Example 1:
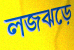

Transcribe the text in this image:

লজঝড়ে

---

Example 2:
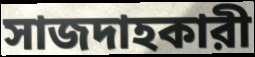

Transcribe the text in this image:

সাজদাহকারী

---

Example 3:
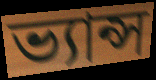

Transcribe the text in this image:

ভ্যান্স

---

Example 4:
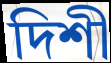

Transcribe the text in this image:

দিশী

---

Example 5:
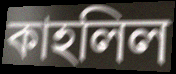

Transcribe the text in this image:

কাহলিল